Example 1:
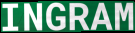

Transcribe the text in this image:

INGRAM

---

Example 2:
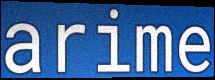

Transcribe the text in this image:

arime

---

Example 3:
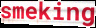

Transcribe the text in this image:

smeking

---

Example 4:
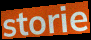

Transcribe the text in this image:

storie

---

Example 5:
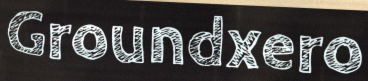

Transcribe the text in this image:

Groundxero